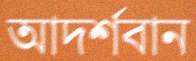
আদর্শবান